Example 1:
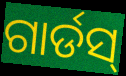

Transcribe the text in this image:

ଗାର୍ଡସ୍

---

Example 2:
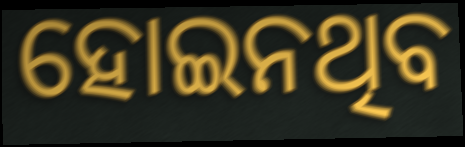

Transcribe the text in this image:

ହୋଇନଥିବ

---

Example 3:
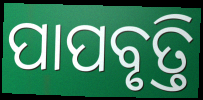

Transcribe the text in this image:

ପାପବୃତ୍ତି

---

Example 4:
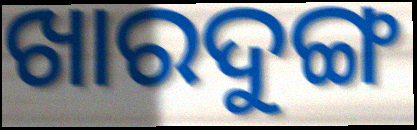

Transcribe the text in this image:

ଖାରଦୁଙ୍ଗ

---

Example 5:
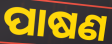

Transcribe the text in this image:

ପାଷଣ